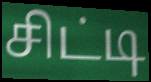
சிட்டி